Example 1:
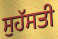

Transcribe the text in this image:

ਸੁਹੱਸਤੀ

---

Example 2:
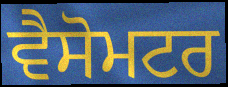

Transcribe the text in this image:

ਵੈਸੋਮਟਰ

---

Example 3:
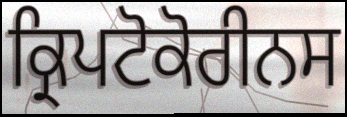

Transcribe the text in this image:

ਕ੍ਰਿਪਟੋਕੋਰੀਨਸ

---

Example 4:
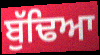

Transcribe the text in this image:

ਬੁੱਢਿਆ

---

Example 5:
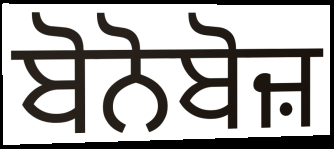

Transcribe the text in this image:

ਬੋਨੋਬੋਜ਼